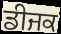
ਡੀਜਕ